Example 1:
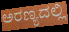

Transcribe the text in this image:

ಅರಣ್ಯದಲ್ಲಿ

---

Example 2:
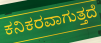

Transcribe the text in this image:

ಕನಿಕರವಾಗುತ್ತದೆ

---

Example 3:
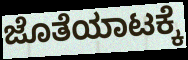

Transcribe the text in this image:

ಜೊತೆಯಾಟಕ್ಕೆ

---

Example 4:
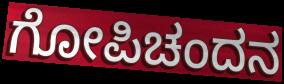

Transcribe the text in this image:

ಗೋಪಿಚಂದನ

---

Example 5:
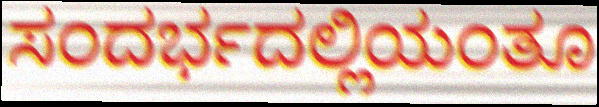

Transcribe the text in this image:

ಸಂದರ್ಭದಲ್ಲಿಯಂತೂ